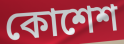
কোশেশ